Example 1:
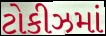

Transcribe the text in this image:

ટોકીઝમાં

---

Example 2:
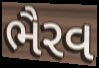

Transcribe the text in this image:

ભૈરવ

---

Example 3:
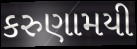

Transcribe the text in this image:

કરુણામયી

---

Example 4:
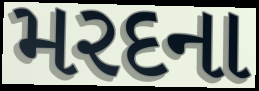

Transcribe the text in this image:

મરદના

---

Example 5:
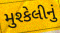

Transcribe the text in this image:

મુશ્કેલીનું